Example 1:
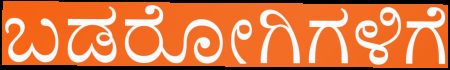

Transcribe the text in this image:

ಬಡರೋಗಿಗಳಿಗೆ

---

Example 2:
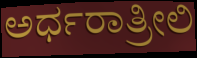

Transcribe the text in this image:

ಅರ್ಧರಾತ್ರೀಲಿ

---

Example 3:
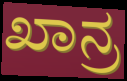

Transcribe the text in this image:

ಖಾನ್ರ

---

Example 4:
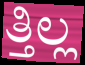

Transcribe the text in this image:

ತ್ತಿಲ್ಲ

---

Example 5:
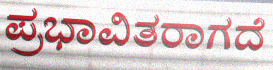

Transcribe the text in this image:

ಪ್ರಭಾವಿತರಾಗದೆ